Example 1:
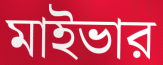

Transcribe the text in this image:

মাইভার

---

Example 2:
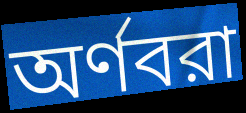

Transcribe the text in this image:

অর্ণবরা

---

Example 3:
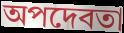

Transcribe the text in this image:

অপদেবতা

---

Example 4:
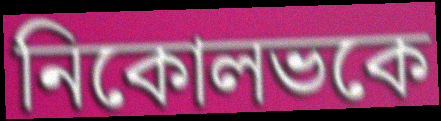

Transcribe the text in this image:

নিকোলভকে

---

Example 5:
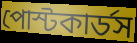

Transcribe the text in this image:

পোস্টকার্ডস